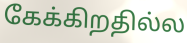
கேக்கிறதில்ல